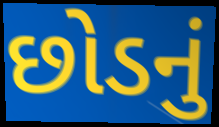
છોડનું